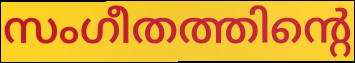
സംഗീതത്തിന്റെ